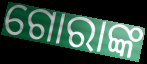
ଗୋରାଙ୍କ